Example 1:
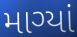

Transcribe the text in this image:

માગ્યાં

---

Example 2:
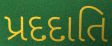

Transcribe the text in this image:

પ્રદદાતિ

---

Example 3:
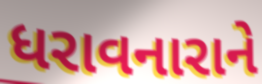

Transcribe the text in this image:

ધરાવનારાને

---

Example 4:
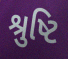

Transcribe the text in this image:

શ્રુષ્ટિ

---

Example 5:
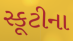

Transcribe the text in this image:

સ્કૂટીના